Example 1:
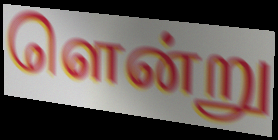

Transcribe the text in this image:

ளென்று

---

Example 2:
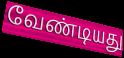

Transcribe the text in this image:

வேண்டியது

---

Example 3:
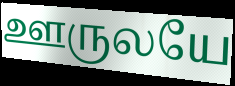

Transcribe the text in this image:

ஊருலயே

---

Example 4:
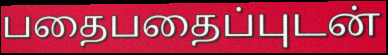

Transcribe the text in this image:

பதைபதைப்புடன்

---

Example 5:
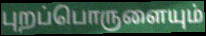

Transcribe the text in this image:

புறப்பொருளையும்